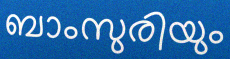
ബാംസുരിയും